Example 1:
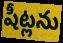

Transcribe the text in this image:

షీట్లను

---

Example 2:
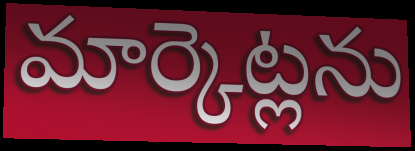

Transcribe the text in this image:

మార్కెట్లను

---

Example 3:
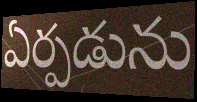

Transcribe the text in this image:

ఏర్పడును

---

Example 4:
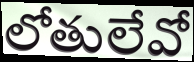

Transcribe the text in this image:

లోతులేవో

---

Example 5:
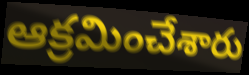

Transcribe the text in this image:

ఆక్రమించేశారు